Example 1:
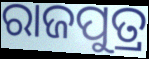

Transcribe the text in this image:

ରାଜପୁତ୍ର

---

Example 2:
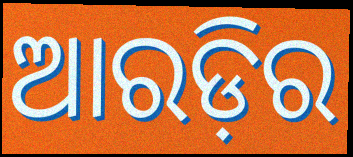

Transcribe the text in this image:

ଆରଡ଼ିର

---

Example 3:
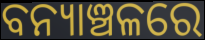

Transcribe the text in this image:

ବନ୍ୟାଞ୍ଚଳରେ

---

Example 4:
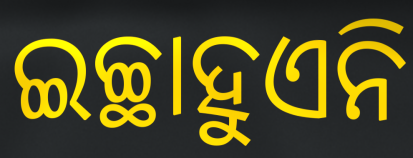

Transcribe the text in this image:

ଇଚ୍ଛାହୁଏନି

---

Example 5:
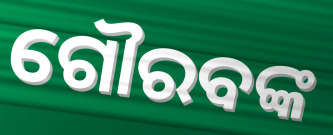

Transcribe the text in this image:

ଗୌରବଙ୍କ